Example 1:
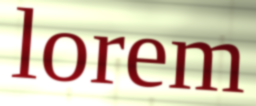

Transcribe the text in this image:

lorem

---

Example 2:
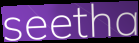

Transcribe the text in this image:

seetha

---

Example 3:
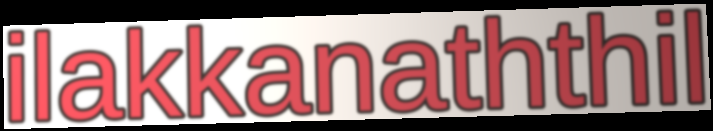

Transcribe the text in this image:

ilakkanaththil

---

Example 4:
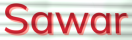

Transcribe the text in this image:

Sawar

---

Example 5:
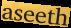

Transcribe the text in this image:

aseeth